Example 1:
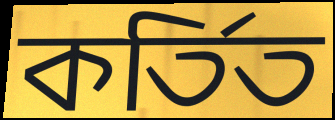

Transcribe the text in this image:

কর্তিত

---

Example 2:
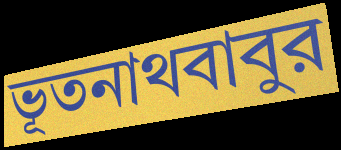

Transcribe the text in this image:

ভূতনাথবাবুর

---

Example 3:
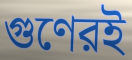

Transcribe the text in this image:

গুণেরই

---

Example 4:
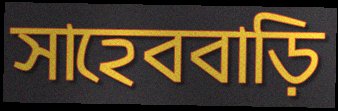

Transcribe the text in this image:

সাহেববাড়ি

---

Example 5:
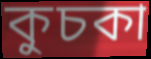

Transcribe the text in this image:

কুচকা